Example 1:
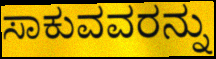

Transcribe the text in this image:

ಸಾಕುವವರನ್ನು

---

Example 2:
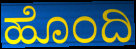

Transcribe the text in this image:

ಹೊಂದಿ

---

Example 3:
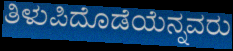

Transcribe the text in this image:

ತಿಳುಪಿದೊಡೆಯೆನ್ನವರು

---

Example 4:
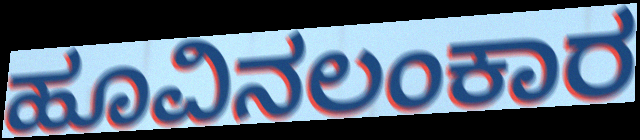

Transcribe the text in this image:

ಹೂವಿನಲಂಕಾರ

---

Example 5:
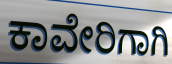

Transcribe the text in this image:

ಕಾವೇರಿಗಾಗಿ